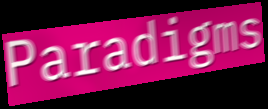
Paradigms